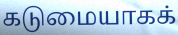
கடுமையாகக்